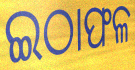
ଇଠାଫଳ